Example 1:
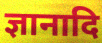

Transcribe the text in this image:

ज्ञानादि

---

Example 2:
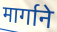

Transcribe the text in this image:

मार्गाने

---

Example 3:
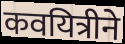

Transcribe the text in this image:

कवयित्रीने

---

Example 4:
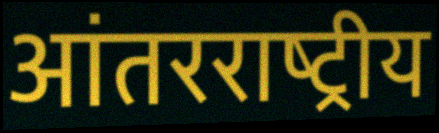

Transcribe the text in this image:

आंतरराष्ट्रीय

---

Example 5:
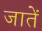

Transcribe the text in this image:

जातें